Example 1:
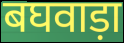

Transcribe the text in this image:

बघवाड़ा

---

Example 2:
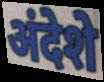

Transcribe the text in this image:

अंदेशे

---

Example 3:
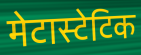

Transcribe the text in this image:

मेटास्टेटिक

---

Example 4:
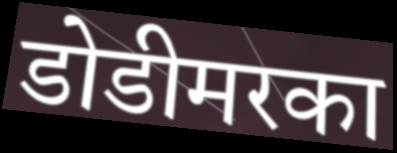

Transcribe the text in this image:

डोडीमरका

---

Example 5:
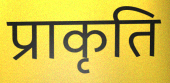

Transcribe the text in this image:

प्राकृति